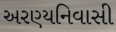
અરણ્યનિવાસી